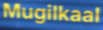
Mugilkaal